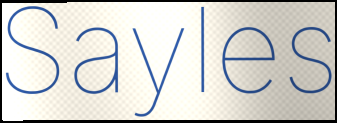
Sayles